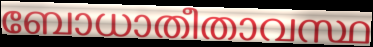
ബോധാതീതാവസ്ഥ